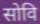
सोवि